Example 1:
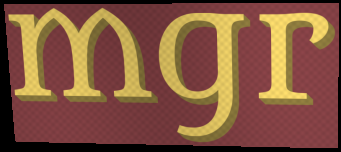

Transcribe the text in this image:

mgr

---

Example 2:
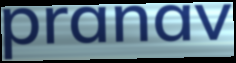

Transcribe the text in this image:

pranav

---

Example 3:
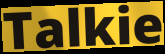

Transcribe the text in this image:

Talkie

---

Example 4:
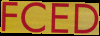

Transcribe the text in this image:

FCED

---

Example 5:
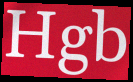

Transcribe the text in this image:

Hgb